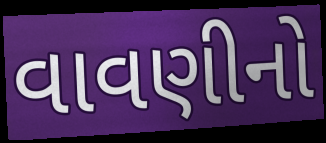
વાવણીનો